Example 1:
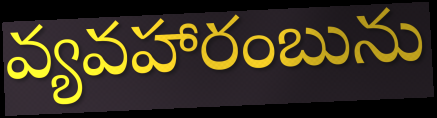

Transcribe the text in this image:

వ్యవహారంబును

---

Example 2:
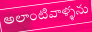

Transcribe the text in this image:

అలాంటివాళ్ళను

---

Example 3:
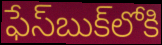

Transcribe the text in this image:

ఫేస్‌బుక్‌లోకి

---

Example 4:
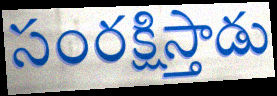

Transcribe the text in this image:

సంరక్షిస్తాడు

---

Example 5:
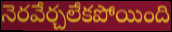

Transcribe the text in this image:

నెరవేర్చలేకపోయింది